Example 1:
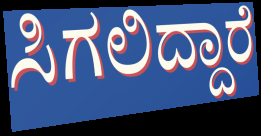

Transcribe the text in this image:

ಸಿಗಲಿದ್ದಾರೆ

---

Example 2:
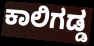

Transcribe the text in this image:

ಕಾಲಿಗಡ್ಡ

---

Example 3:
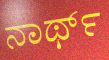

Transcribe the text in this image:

ನಾರ್ಥ್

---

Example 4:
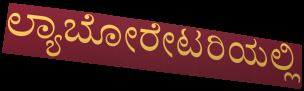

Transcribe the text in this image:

ಲ್ಯಾಬೋರೇಟರಿಯಲ್ಲಿ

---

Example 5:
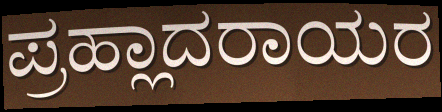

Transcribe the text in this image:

ಪ್ರಹ್ಲಾದರಾಯರ